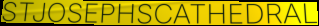
STJOSEPHSCATHEDRAL